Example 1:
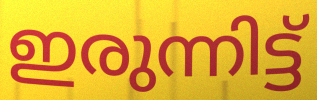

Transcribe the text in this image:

ഇരുന്നിട്ട്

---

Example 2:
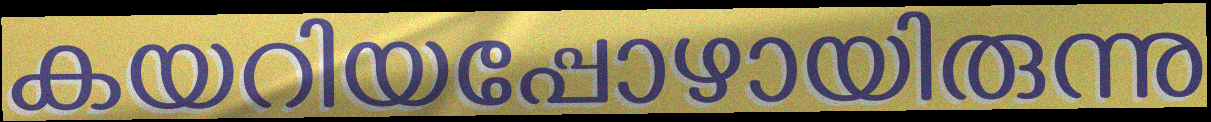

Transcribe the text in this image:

കയറിയപ്പോഴായിരുന്നു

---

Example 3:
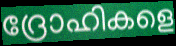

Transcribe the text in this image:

ദ്രോഹികളെ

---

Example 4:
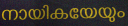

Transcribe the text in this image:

നായികയേയും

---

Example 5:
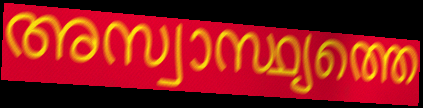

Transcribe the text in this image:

അസ്വാസ്ഥ്യത്തെ